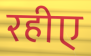
रहीए